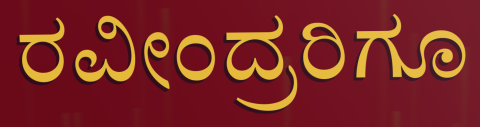
ರವೀಂದ್ರರಿಗೂ